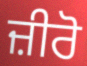
ਜ਼ੀਰੋ